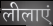
लीलाएं